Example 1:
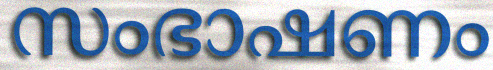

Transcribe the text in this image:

സംഭാഷണം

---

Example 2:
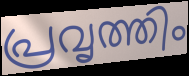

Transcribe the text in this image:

പ്രവൃത്തിം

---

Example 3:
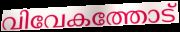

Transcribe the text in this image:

വിവേകത്തോട്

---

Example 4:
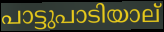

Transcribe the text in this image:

പാട്ടുപാടിയാല്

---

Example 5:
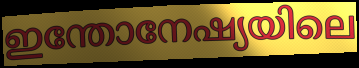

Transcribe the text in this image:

ഇന്തോനേഷ്യയിലെ